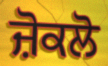
ਜ਼ੋਕਲੋ